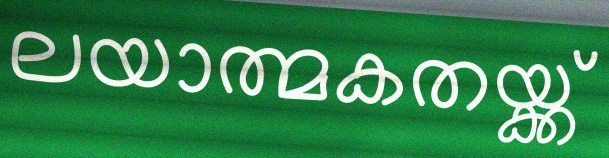
ലയാത്മകതയ്ക്ക്